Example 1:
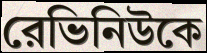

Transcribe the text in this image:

রেভিনিউকে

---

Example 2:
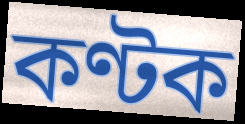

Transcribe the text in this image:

কণ্টক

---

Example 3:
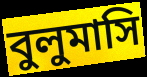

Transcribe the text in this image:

বুলুমাসি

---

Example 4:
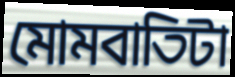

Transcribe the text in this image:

মোমবাতিটা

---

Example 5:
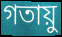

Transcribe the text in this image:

গতায়ু